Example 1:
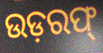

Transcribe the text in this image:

ଉଡ଼ରଫ୍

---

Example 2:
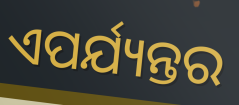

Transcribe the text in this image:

ଏପର୍ଯ୍ୟନ୍ତର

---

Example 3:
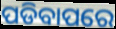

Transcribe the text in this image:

ପଡିବାପରେ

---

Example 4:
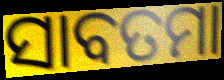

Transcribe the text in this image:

ସାବତମା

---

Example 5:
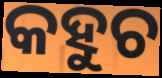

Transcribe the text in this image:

କହୁଚ